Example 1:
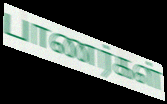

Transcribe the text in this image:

பாணர்கள்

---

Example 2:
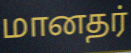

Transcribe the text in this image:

மானதர்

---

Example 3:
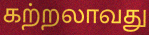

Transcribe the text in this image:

கற்றலாவது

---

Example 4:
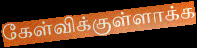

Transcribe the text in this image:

கேள்விக்குள்ளாக்க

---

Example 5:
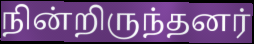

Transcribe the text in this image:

நின்றிருந்தனர்